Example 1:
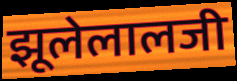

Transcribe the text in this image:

झूलेलालजी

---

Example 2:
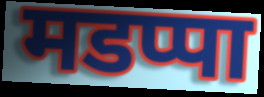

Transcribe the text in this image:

मडप्पा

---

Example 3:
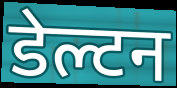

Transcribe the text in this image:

डेल्टन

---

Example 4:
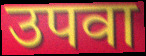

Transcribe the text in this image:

उपवा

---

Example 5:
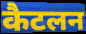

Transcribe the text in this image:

कैटलन